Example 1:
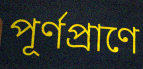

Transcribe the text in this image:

পূর্ণপ্রাণে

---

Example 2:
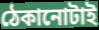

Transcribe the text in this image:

ঠেকানোটাই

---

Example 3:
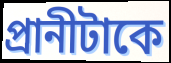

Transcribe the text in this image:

প্রানীটাকে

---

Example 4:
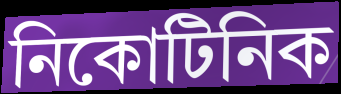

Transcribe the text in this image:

নিকোটিনিক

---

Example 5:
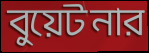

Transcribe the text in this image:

বুয়েটনার